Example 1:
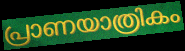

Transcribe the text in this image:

പ്രാണയാത്രികം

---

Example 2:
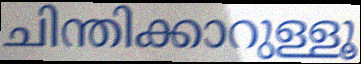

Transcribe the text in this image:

ചിന്തിക്കാറുള്ളൂ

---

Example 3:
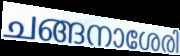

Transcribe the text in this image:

ചങ്ങനാശേരി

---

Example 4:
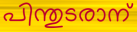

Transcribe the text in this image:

പിന്തുടരാന്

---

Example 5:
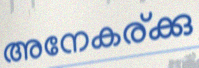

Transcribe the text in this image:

അനേകര്ക്കു